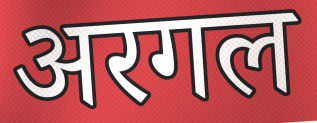
अरगल